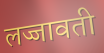
लज्जावती